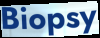
Biopsy